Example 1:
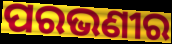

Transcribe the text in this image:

ପରଭଣୀର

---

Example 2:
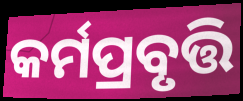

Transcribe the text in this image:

କର୍ମପ୍ରବୃତ୍ତି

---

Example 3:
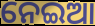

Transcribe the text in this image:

ନେଇଆ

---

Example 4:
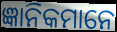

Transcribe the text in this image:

ଜ୍ଞାନିକମାନେ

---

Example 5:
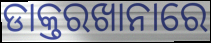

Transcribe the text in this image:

ଡାକ୍ତରଖାନାରେ